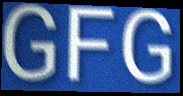
GFG